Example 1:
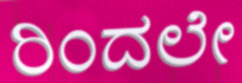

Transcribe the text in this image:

ರಿಂದಲೇ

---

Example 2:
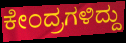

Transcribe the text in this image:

ಕೇಂದ್ರಗಳಿದ್ದು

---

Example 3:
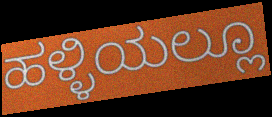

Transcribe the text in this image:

ಹಳ್ಳಿಯಲ್ಲೂ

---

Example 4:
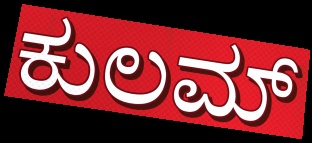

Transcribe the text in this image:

ಕುಲಮ್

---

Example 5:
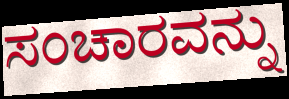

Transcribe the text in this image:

ಸಂಚಾರವನ್ನು